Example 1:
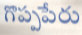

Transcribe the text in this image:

గొప్పపేరు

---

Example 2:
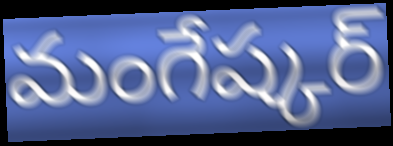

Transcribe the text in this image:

మంగేష్కర్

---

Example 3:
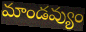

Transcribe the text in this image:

మాండవ్యుం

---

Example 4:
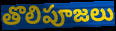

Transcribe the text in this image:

తొలిపూజలు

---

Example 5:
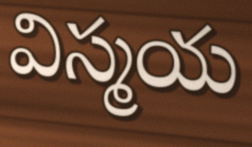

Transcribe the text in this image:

విస్మయ